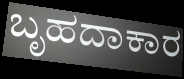
ಬೃಹದಾಕಾರ